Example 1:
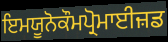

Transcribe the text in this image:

ਇਮਯੂਨੋਕੌਮਪ੍ਰੋਮਾਈਜ਼ਡ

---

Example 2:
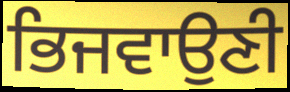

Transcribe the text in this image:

ਭਿਜਵਾਉਣੀ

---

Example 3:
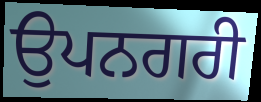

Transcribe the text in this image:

ਉਪਨਗਰੀ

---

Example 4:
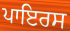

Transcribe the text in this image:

ਪਾਇਰਸ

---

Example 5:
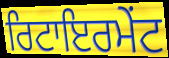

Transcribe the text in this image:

ਰਿਟਾਇਰਮੇਂਟ